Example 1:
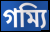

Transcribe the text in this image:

গম্যি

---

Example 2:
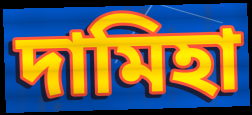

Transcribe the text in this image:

দামিহা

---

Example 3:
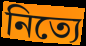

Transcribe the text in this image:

নিত্যে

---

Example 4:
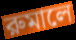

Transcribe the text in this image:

রুমালে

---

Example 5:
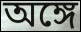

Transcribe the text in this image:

অঙ্গে